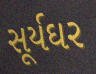
સૂર્યઘર